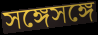
সঙ্গেসঙ্গে